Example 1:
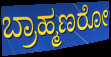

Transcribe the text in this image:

ಬ್ರಾಹ್ಮಣರೋ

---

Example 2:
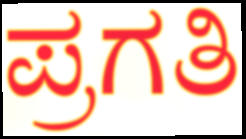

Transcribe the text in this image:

ಪ್ರಗತಿ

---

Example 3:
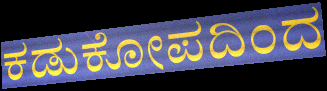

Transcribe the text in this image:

ಕಡುಕೋಪದಿಂದ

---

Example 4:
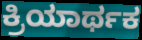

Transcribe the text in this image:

ಕ್ರಿಯಾರ್ಥಕ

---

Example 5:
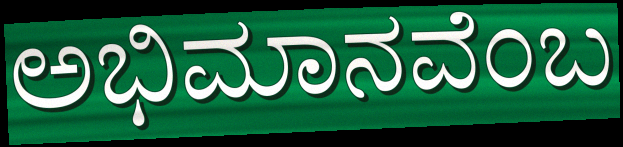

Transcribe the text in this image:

ಅಭಿಮಾನವೆಂಬ